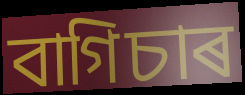
বাগিচাৰ